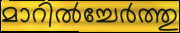
മാറിൽച്ചേർത്തു